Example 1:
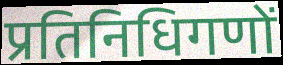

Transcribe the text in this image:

प्रतिनिधिगणों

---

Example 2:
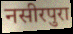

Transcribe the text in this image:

नसीरपुरा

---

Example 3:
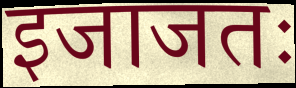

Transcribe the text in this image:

इजाजतः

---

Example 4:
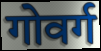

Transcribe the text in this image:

गोवर्ग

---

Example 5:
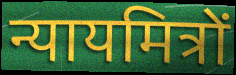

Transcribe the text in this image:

न्यायमित्रों